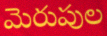
మెరుపుల